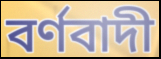
বৰ্ণবাদী